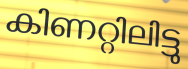
കിണറ്റിലിട്ടു